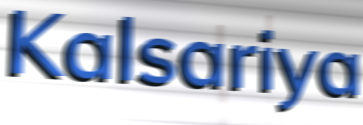
Kalsariya